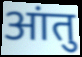
आंतु